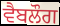
ਵੈਬਲੌਗ